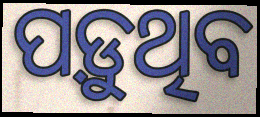
ପଡ଼ୁଥିବ